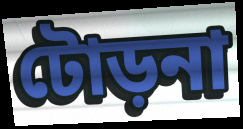
টোড়না